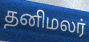
தனிமலர்